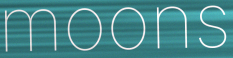
moons